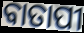
ବାତାପୀ